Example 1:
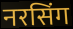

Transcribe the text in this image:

नरसिंग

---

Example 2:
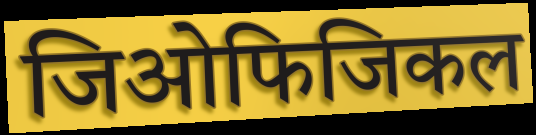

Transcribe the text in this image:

जिओफिजिकल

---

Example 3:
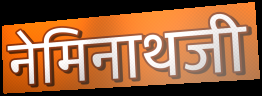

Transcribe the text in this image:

नेमिनाथजी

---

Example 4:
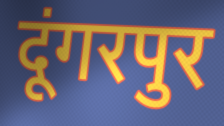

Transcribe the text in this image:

दूंगरपुर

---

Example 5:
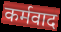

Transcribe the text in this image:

कर्मवाद